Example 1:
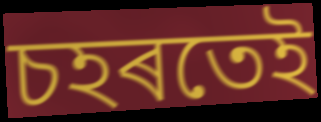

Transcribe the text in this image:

চহৰতেই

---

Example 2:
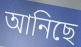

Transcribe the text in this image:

আনিছে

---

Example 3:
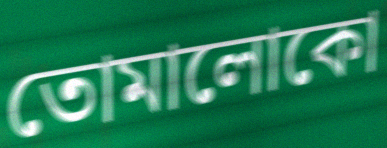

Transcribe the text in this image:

তোমালোকো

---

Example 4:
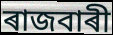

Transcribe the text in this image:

ৰাজবাৰী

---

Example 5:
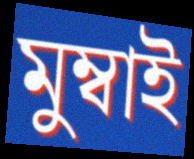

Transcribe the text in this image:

মুম্বাই